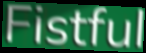
Fistful